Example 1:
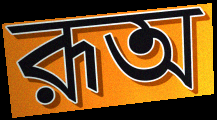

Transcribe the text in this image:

রূঅ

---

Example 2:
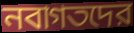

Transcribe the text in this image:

নবাগতদের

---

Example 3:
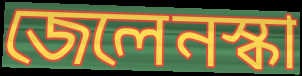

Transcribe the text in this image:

জেলেনস্কা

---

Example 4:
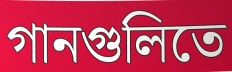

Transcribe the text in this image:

গানগুলিতে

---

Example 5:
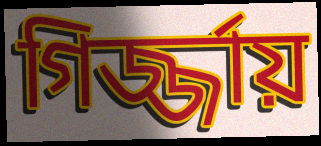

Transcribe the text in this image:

গির্জ্জায়